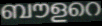
ബൗളറെ